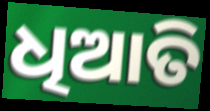
ଧିଆତି